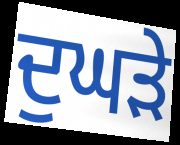
ਦੁਘੜੇ